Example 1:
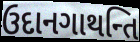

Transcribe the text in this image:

ઉદાનગાથન્તિ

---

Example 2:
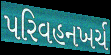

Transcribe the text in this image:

પરિવહનખર્ચ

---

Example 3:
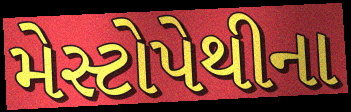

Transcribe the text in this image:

મેસ્ટોપેથીના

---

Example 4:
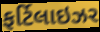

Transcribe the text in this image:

ફર્ટિલાઇઝર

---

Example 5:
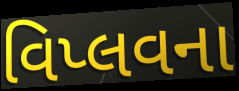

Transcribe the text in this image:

વિપ્લવના